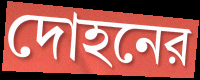
দোহনের